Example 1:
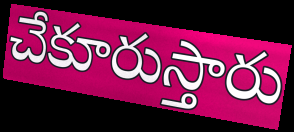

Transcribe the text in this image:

చేకూరుస్తారు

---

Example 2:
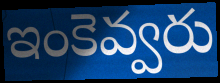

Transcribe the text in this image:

ఇంకెవ్వరు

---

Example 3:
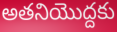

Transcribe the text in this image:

అతనియొద్దకు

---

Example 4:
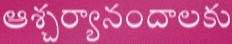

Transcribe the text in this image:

ఆశ్చర్యానందాలకు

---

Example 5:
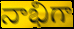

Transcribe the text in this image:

నాభిగా